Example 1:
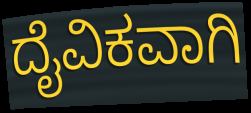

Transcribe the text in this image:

ದೈವಿಕವಾಗಿ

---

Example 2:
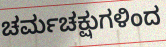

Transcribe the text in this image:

ಚರ್ಮಚಕ್ಷುಗಳಿಂದ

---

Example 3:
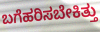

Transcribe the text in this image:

ಬಗೆಹರಿಸಬೇಕಿತ್ತು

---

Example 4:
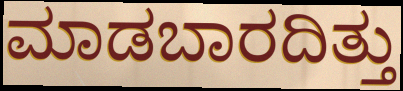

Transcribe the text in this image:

ಮಾಡಬಾರದಿತ್ತು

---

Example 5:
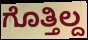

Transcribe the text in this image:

ಗೊತ್ತಿಲ್ದ